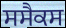
ਸਸੈਕਸ